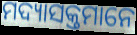
ମଦ୍ୟାସକ୍ତମାନେ